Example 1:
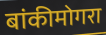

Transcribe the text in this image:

बांकीमोगरा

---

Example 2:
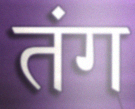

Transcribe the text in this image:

तंग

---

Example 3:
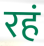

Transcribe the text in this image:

रहं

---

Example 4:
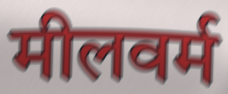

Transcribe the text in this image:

मीलवर्म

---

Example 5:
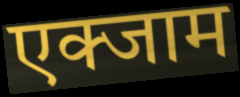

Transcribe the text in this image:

एक्जाम